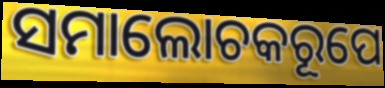
ସମାଲୋଚକରୂପେ